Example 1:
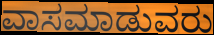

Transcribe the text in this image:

ವಾಸಮಾಡುವರು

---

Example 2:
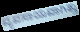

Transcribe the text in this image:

ವ್ಯವಸಾಯವಾಗಿತ್ತು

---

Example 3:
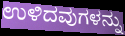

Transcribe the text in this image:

ಉಳಿದವುಗಳನ್ನು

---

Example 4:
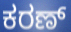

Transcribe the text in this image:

ಕರಣ್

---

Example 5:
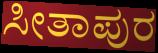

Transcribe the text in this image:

ಸೀತಾಪುರ